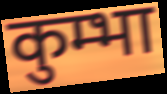
कुम्भा